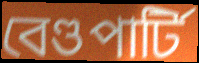
বেণ্ডপাৰ্টি